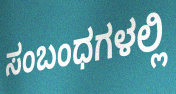
ಸಂಬಂಧಗಳಲ್ಲಿ